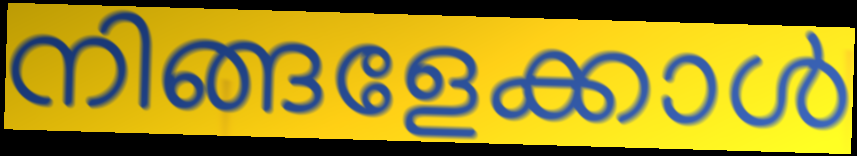
നിങ്ങളേക്കാൾ